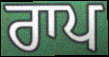
ਰਾਪ